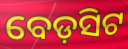
ବେଡ଼ସିଟ